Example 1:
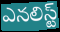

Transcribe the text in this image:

ఎనలిస్ట్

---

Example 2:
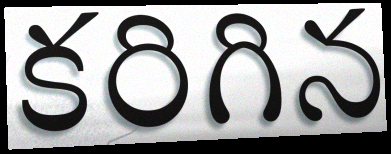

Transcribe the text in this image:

కరిగిన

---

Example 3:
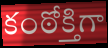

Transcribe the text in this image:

కంఠోక్తిగా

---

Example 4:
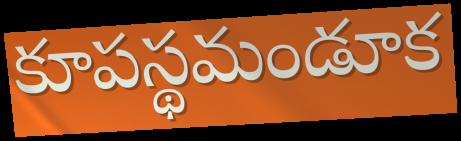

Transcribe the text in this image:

కూపస్థమండూక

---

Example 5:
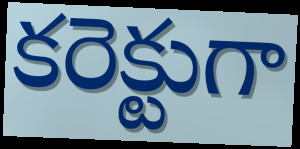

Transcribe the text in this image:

కరెక్టుగా